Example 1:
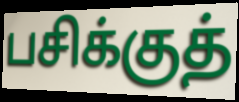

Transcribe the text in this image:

பசிக்குத்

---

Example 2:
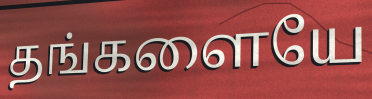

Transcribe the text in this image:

தங்களையே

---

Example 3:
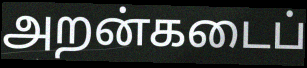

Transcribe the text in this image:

அறன்கடைப்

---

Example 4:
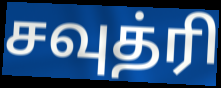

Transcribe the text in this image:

சவுத்ரி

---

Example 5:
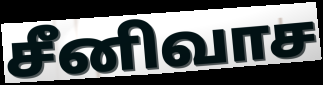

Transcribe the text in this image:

சீனிவாச